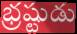
భ్రష్టుడు